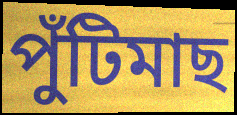
পুঁটিমাছ